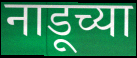
नाडूच्या